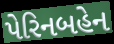
પેરિનબહેન